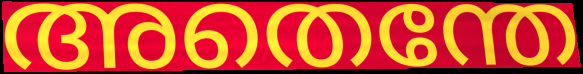
അതെന്തേ